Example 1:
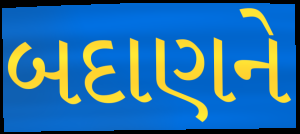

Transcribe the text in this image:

બદાણને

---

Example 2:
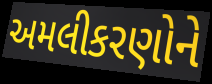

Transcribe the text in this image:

અમલીકરણોને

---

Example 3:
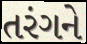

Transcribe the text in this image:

તરંગને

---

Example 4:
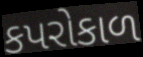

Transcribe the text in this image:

કપરોકાળ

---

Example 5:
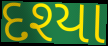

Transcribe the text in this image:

દશ્યા